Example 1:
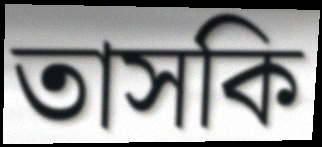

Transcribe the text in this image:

তাসকি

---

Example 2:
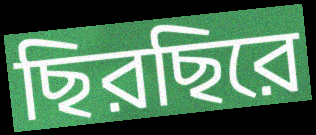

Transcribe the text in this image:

ছিরছিরে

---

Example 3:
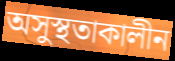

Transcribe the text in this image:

অসুস্থতাকালীন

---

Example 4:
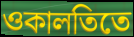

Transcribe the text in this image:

ওকালতিতে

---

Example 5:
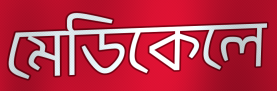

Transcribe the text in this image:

মেডিকেলে